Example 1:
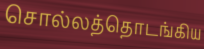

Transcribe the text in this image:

சொல்லத்தொடங்கிய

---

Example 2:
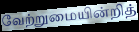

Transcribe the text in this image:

வேற்றுமையின்றித்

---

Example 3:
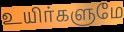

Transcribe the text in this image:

உயிர்களுமே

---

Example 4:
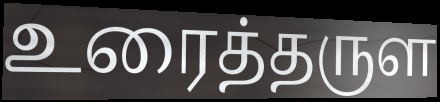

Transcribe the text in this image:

உரைத்தருள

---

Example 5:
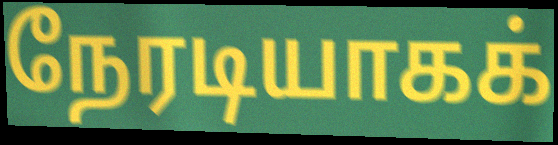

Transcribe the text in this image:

நேரடியாகக்